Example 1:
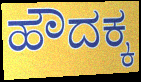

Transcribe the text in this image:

ಹೌದಕ್ಕ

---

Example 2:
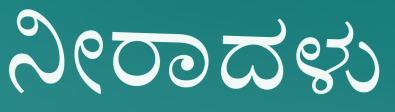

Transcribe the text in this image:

ನೀರಾದಳು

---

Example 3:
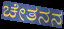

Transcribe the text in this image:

ಚೇತನನ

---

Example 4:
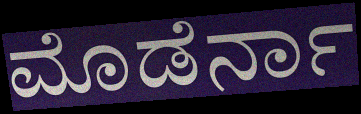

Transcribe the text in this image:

ಮೊಡೆರ್ನಾ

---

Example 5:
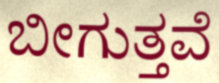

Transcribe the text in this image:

ಬೀಗುತ್ತವೆ